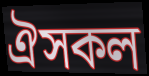
ঐসকল